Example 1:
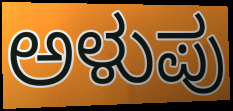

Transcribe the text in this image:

ಅಳುಪು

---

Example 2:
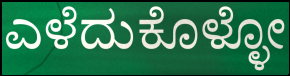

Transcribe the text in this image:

ಎಳೆದುಕೊಳ್ಳೋ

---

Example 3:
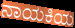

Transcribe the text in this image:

ನಾಯಕಿಯ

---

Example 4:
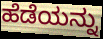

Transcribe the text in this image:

ಹೆಡೆಯನ್ನು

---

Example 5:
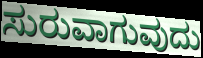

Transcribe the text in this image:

ಸುರುವಾಗುವುದು